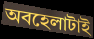
অবহেলাটাই